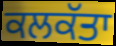
ਕਲਕੱਤਾ